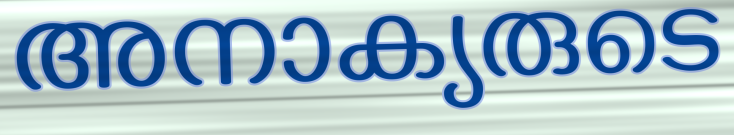
അനാക്യരുടെ